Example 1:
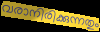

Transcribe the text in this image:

വരാനിരിക്കുന്നതും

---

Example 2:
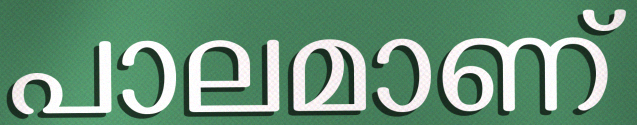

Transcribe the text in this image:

പാലമാണ്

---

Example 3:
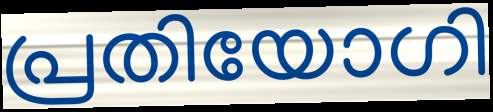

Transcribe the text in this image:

പ്രതിയോഗി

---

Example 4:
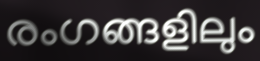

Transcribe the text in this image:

രംഗങ്ങളിലും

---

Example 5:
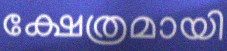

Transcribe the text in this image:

ക്ഷേത്രമായി